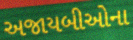
અજાયબીઓના